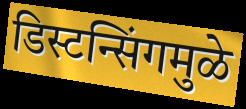
डिस्टन्सिंगमुळे